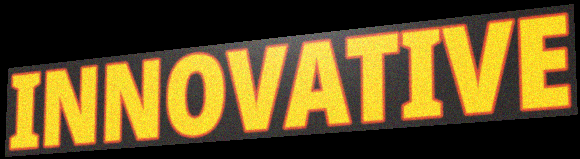
INNOVATIVE